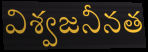
విశ్వజనీనత